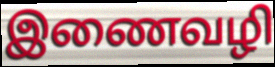
இணைவழி